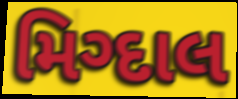
મિગ્દાલ